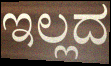
ಇಲ್ಲದ